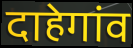
दाहेगांव